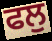
ਫਲੁ